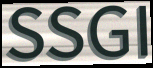
SSGI